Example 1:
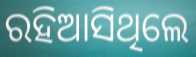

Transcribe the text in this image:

ରହିଆସିଥିଲେ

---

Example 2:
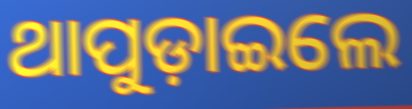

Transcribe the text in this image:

ଥାପୁଡ଼ାଇଲେ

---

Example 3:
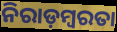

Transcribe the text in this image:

ନିରାଡ଼ମ୍ବରତା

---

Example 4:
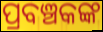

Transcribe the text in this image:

ପ୍ରବଞ୍ଚକଙ୍କ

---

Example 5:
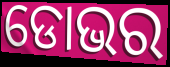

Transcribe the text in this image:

ଡୋଭର